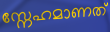
സ്നേഹമാണത്